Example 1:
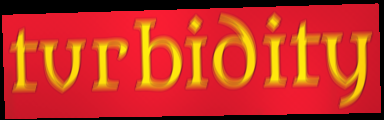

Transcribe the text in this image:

turbidity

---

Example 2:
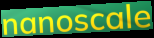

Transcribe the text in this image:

nanoscale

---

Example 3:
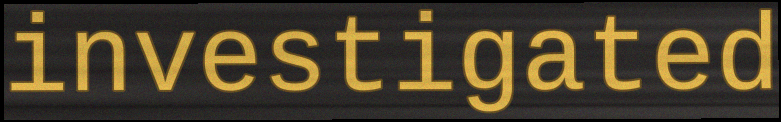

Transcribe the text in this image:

investigated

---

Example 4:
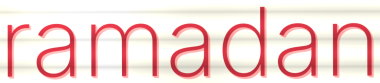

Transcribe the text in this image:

ramadan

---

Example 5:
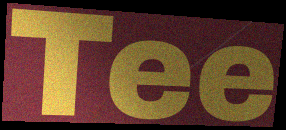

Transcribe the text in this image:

Tee